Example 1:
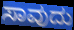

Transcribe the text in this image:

ಸಾವುದು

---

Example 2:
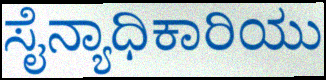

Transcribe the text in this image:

ಸೈನ್ಯಾಧಿಕಾರಿಯು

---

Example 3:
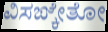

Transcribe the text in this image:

ವಿಸಙ್ಕೇತೋ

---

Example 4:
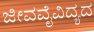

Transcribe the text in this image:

ಜೀವವೈವಿದ್ಯದ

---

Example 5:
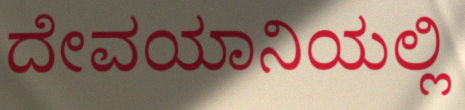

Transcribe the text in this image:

ದೇವಯಾನಿಯಲ್ಲಿ